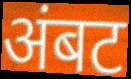
अंबट